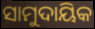
ସାମୁଦାୟିକ